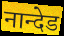
नान्देड